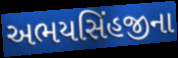
અભયસિંહજીના